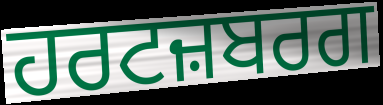
ਹਰਟਜ਼ਬਰਗ